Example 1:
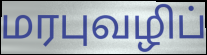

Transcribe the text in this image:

மரபுவழிப்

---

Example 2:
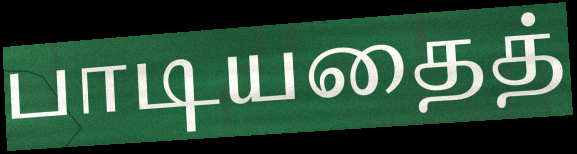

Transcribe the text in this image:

பாடியதைத்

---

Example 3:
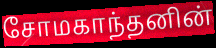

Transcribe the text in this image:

சோமகாந்தனின்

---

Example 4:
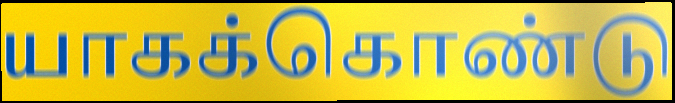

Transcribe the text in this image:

யாகக்கொண்டு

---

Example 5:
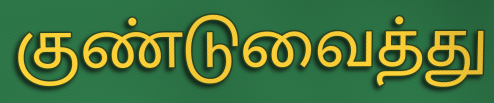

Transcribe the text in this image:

குண்டுவைத்து